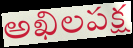
అఖిలపక్ష